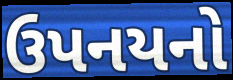
ઉપનયનો